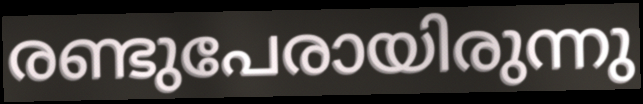
രണ്ടുപേരായിരുന്നു